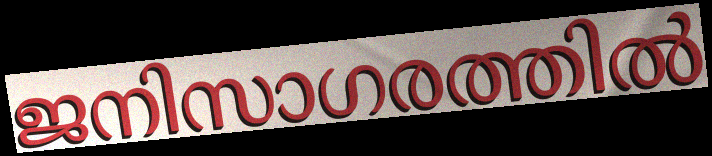
ജനിസാഗരത്തിൽ